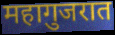
महागुजरात